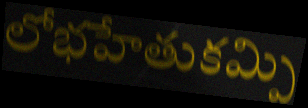
లోభహేతుకమ్పి